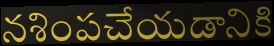
నశింపచేయడానికి